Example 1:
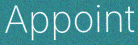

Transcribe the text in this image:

Appoint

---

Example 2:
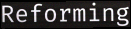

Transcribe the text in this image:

Reforming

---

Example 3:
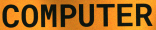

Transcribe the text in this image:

COMPUTER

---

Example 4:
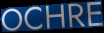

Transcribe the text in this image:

OCHRE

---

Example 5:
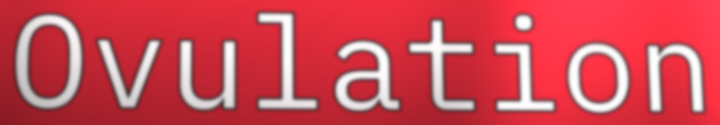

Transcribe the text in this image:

Ovulation